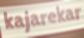
kajarekar